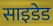
साइडेड